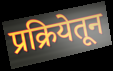
प्रक्रियेतून